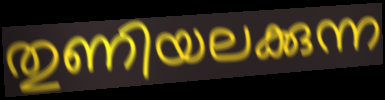
തുണിയലക്കുന്ന